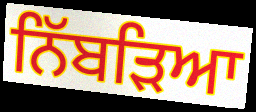
ਨਿੱਬੜਿਆ